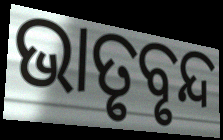
ଭାତୃବୃନ୍ଦ